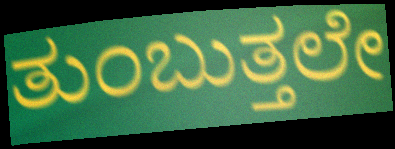
ತುಂಬುತ್ತಲೇ